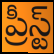
ప్రీస్ట్